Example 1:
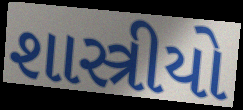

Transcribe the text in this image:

શાસ્ત્રીયો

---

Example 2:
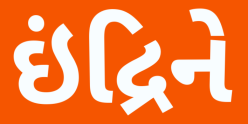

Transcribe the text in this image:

ઇંદ્રિને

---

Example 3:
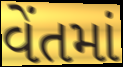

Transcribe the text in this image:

વેંતમાં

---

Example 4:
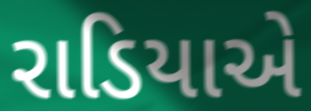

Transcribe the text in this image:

રાડિયાએ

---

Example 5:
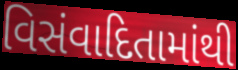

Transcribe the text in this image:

વિસંવાદિતામાંથી